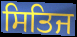
ਸਿਤਿਜ